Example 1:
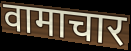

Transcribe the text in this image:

वामाचार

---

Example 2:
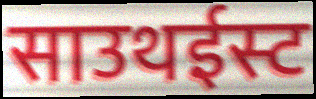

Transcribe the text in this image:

साउथईस्ट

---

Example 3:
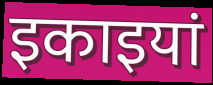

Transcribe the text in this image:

इकाइयां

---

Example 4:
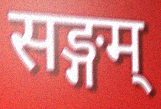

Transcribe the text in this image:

सङ्गम्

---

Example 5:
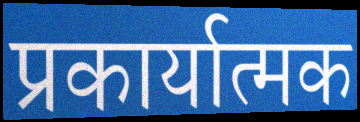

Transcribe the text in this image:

प्रकार्यात्मक